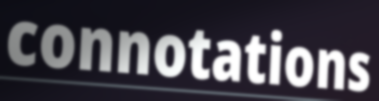
connotations